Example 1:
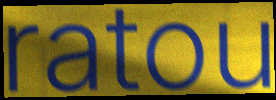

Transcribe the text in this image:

ratou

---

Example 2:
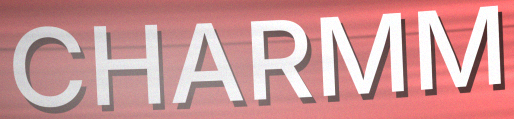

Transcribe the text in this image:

CHARMM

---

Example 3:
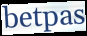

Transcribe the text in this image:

betpas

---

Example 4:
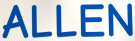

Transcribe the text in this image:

ALLEN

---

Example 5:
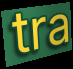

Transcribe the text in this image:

tra